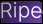
Ripe